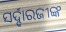
ସର୍ଦ୍ଦାରଜୀଙ୍କ